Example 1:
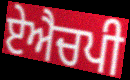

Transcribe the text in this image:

ਏਐਚਪੀ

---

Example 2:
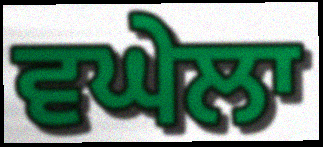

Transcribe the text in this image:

ਵਘੇਲਾ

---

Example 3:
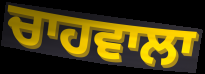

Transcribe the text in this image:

ਚਾਹਵਾਲਾ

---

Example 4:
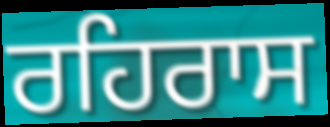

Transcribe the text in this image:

ਰਹਿਰਾਸ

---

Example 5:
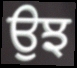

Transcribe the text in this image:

ਉਝ